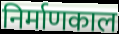
निर्माणकाल